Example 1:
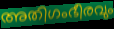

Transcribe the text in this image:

അതിഗംഭീരവും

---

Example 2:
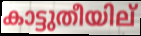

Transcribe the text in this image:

കാട്ടുതീയില്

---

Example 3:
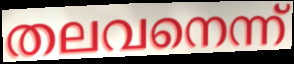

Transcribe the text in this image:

തലവനെന്ന്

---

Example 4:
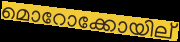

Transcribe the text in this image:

മൊറോക്കോയില്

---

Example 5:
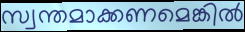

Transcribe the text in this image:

സ്വന്തമാക്കണമെങ്കിൽ